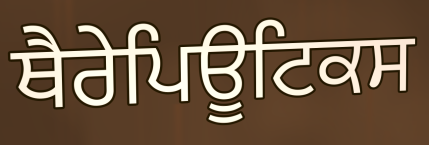
ਥੈਰੇਪਿਊਟਿਕਸ